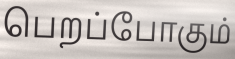
பெறப்போகும்